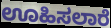
ಊಹಿಸಲಾರೆ